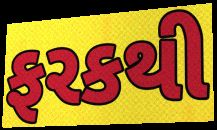
ફરકથી